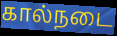
கால்நடை